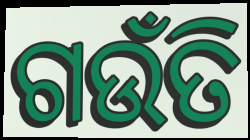
ଗଉଁତି